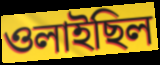
ওলাইছিল